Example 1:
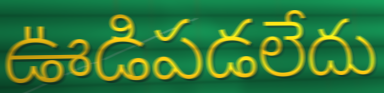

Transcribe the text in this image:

ఊడిపడలేదు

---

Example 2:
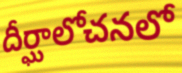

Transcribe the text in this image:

దీర్ఘాలోచనలో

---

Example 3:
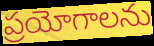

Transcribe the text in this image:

ప్రయోగాలను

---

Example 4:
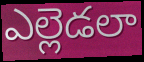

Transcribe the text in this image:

ఎల్లెడలా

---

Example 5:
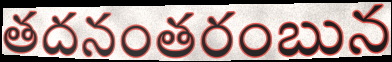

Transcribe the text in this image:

తదనంతరంబున